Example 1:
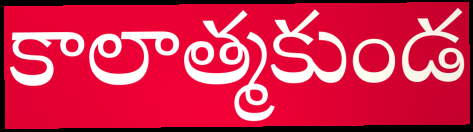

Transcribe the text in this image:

కాలాత్మకుండ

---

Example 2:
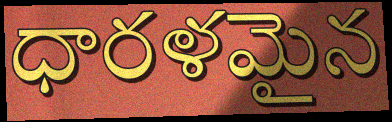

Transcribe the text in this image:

ధారళమైన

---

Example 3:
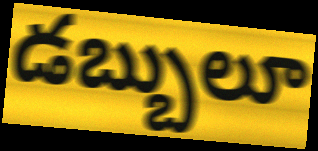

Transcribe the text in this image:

డబ్బులూ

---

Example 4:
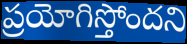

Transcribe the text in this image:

ప్రయోగిస్తోందని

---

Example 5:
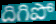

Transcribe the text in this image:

దిగిపో